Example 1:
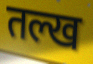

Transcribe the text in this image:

तल्‍ख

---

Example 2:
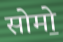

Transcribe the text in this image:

सोमो॒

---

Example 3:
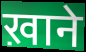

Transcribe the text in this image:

ख़ाने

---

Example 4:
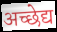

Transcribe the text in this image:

अच्छेद्य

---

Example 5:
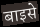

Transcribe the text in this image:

बाइसे